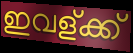
ഇവള്ക്ക്